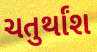
ચતુર્થાંશ